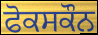
ਫੋਕਸਕੌਨ